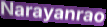
Narayanrao